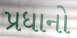
પ્રધાનો